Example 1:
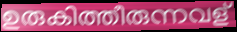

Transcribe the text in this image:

ഉരുകിത്തീരുന്നവള്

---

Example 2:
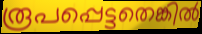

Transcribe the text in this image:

രൂപപ്പെട്ടതെങ്കിൽ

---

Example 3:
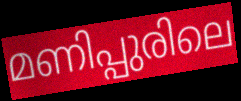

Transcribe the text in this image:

മണിപ്പുരിലെ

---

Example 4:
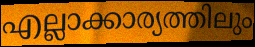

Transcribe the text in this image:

എല്ലാക്കാര്യത്തിലും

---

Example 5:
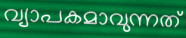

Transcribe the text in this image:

വ്യാപകമാവുന്നത്